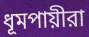
ধূমপায়ীরা